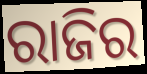
ରାଜିର